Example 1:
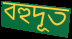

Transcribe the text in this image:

বহুদূত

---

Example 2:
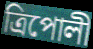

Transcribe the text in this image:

ত্রিপোলী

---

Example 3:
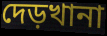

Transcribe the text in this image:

দেড়খানা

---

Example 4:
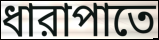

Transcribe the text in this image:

ধারাপাতে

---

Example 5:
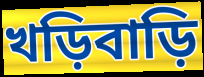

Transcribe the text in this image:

খড়িবাড়ি